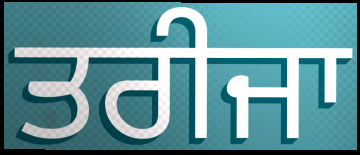
ਤਰੀਜਾ